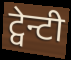
ट्वेन्टी